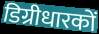
डिग्रीधारकों